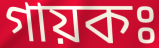
গায়কঃ